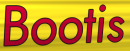
Bootis